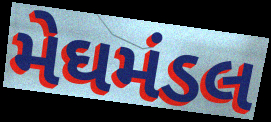
મેઘમંડલ